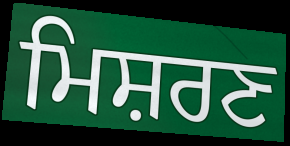
ਮਿਸ਼ਰਣ